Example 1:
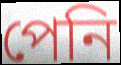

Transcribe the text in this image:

পেনি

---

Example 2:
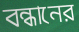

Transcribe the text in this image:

বন্ধানের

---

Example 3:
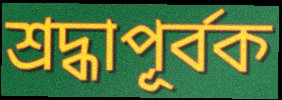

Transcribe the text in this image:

শ্রদ্ধাপূর্বক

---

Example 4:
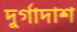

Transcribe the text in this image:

দুর্গাদাশ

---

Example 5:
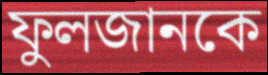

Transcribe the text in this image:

ফুলজানকে